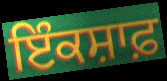
ਇੰਕਸ਼ਾਫ਼